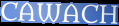
CAWACH